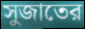
সুজাতের